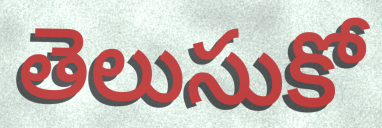
తెలుసుకో